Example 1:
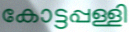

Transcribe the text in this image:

കോട്ടപ്പള്ളി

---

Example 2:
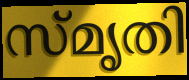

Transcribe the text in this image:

സ്മൃതി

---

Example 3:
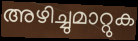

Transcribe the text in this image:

അഴിച്ചുമാറ്റുക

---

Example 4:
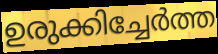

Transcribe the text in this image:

ഉരുക്കിച്ചേർത്ത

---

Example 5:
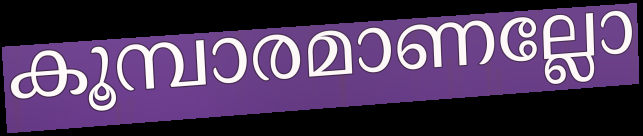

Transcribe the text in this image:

കൂമ്പാരമാണല്ലോ